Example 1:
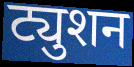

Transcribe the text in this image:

ट्युशन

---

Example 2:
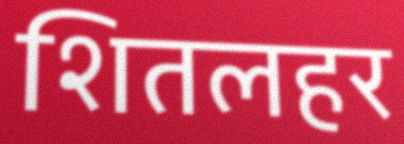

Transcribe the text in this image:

शितलहर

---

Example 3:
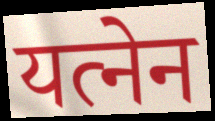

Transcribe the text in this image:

यत्नेन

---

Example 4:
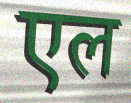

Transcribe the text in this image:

एल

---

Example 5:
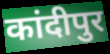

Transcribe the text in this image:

कांदीपुर